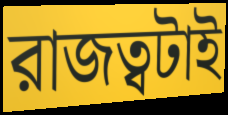
রাজত্বটাই